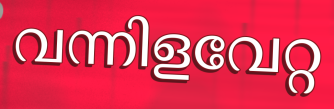
വന്നിളവേറ്റ